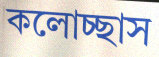
কলোচ্ছাস